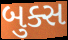
બુક્સ